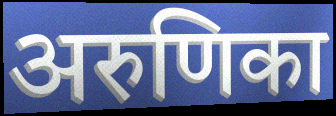
अरुणिका